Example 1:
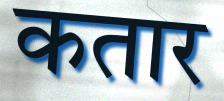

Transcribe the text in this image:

कतार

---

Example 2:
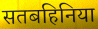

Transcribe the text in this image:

सतबहिनिया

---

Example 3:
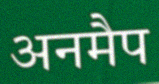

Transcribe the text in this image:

अनमैप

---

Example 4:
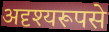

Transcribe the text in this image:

अदृश्यरूपसे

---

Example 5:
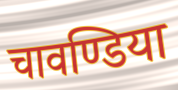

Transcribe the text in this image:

चावण्डिया